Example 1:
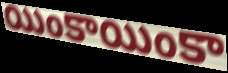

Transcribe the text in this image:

యింకాయింకా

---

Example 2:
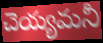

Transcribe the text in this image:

చెయ్యమనీ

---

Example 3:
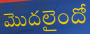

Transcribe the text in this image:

మొదలైందో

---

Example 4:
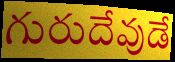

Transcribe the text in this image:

గురుదేవుడే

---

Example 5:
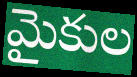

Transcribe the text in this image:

మైకుల